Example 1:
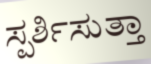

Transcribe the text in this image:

ಸ್ಪರ್ಶಿಸುತ್ತಾ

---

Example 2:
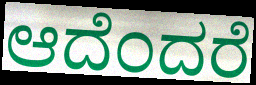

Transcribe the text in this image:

ಆದೆಂದರೆ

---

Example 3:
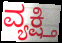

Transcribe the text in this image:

ವ್ಯಕ್ಷ್ತಿ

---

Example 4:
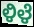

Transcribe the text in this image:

ಳಿಳೆ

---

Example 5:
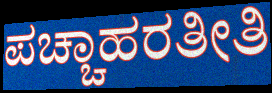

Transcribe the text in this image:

ಪಚ್ಚಾಹರತೀತಿ